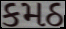
કમઠ